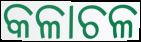
କଳାଚଳ